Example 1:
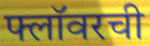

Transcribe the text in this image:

फ्लॉवरची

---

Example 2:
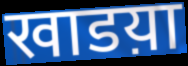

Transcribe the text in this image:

खाडय़ा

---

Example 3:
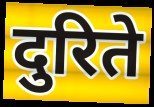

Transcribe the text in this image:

दुरिते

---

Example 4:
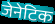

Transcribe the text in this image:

जेनेटिक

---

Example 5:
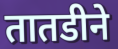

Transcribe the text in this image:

तातडीने